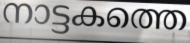
നാട്ടകത്തെ